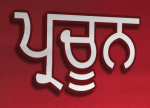
ਪ੍ਰਚੂਨ